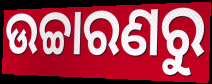
ଉଚ୍ଚାରଣରୁ